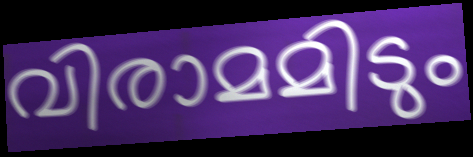
വിരാമമിടും